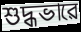
শুদ্ধভাৱে